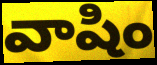
వాషిం